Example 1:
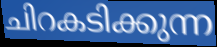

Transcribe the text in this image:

ചിറകടിക്കുന്ന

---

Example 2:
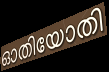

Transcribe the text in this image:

ഓതിയോതി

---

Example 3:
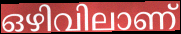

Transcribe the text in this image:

ഒഴിവിലാണ്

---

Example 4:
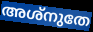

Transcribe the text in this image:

അശ്നുതേ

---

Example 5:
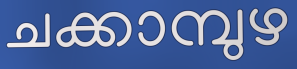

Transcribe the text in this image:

ചക്കാമ്പുഴ